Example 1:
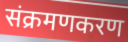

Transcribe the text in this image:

संक्रमणकरण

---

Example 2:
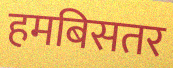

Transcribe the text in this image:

हमबिसतर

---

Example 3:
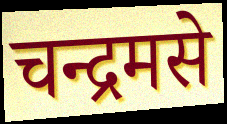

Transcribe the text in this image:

चन्द्रमसे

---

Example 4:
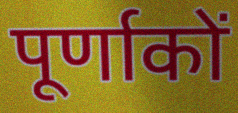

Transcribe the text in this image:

पूर्णाकों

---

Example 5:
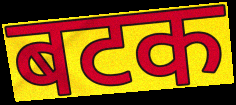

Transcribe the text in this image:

बटक